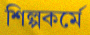
শিল্পকর্মে